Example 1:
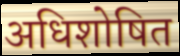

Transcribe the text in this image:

अधिशोषित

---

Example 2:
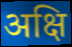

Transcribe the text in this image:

अक्षि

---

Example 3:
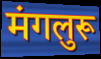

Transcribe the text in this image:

मंगलुरू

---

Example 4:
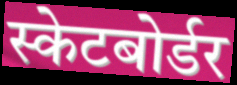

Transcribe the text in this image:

स्केटबोर्डर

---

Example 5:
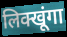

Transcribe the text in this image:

लिक्खूंगा